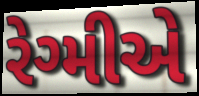
રેગ્મીએ